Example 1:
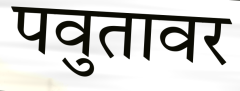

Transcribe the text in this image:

पवुतावर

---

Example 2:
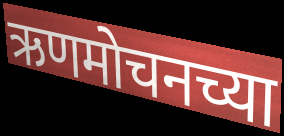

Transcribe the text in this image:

ऋणमोचनच्या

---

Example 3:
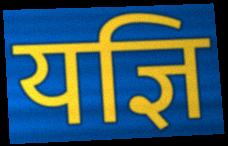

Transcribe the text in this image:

यज्ञि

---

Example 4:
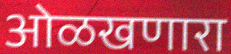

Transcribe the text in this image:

ओळखणारा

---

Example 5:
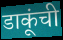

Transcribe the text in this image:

डाकूंची